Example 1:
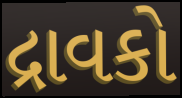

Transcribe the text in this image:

દ્રાવકો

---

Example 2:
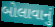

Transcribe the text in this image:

બોલાવાનું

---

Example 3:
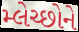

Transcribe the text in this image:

મ્લેચ્છોને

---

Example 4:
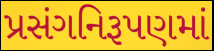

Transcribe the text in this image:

પ્રસંગનિરૂપણમાં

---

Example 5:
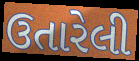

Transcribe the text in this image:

ઉતારેલી